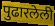
पुढारलेली